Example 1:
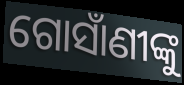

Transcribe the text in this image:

ଗୋସାଁଣୀଙ୍କୁ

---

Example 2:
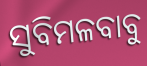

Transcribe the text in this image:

ସୁବିମଳବାବୁ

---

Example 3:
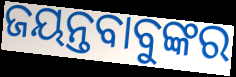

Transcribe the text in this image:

ଜୟନ୍ତବାବୁଙ୍କର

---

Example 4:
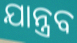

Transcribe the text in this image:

ଯାନ୍ତ୍ରବ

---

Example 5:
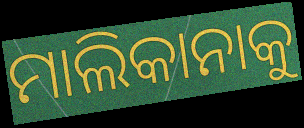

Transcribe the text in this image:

ମାଲିକାନାକୁ